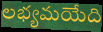
లభ్యమయేది